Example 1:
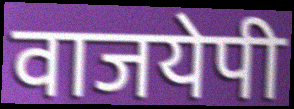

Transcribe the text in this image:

वाजयेपी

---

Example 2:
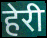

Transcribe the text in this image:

हेरी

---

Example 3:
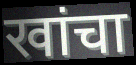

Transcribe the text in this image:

खांचा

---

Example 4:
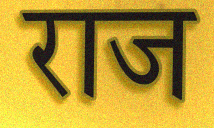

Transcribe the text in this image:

राज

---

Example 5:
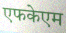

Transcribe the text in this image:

एफकेएम